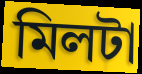
মিলটা